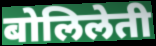
बोलिलेती